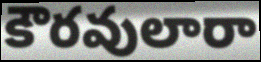
కౌరవులారా